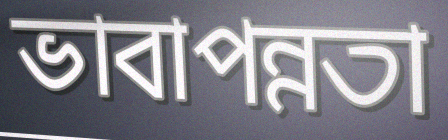
ভাবাপন্নতা